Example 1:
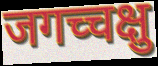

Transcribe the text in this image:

जगच्चक्षु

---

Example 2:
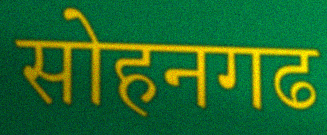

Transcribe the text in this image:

सोहनगढ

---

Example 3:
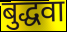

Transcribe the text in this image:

बुद्धवा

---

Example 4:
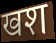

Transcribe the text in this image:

खश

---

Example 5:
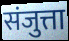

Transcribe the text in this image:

संजुत्ता